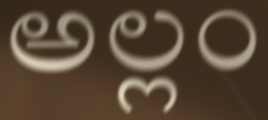
అల్లం